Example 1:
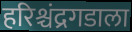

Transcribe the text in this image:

हरिश्चंद्रगडाला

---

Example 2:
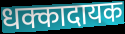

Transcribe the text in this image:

धक्‍कादायक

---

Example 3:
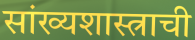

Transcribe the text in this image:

सांख्यशास्त्राची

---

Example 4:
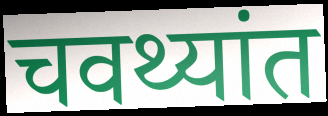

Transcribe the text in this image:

चवथ्यांत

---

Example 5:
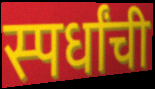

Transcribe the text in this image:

स्पर्धांची